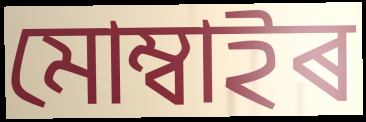
মোম্বাইৰ